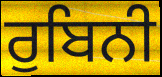
ਰੁਬਿਨੀ